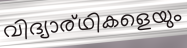
വിദ്യാര്ഥികളെയും